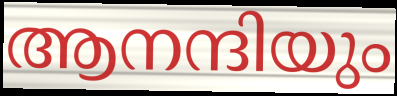
ആനന്ദിയും